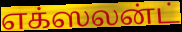
எக்ஸலன்ட்